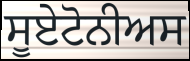
ਸੂਏਟੋਨੀਅਸ